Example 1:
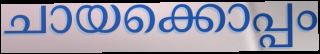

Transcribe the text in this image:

ചായക്കൊപ്പം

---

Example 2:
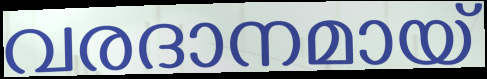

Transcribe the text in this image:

വരദാനമായ്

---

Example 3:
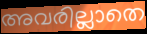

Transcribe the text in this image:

അവരില്ലാതെ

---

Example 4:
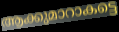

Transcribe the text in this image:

ആക്കുമാറാകട്ടെ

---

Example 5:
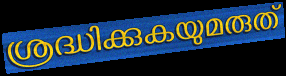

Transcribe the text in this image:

ശ്രദ്ധിക്കുകയുമരുത്